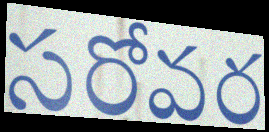
సరోవర